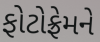
ફોટોફ્રેમને